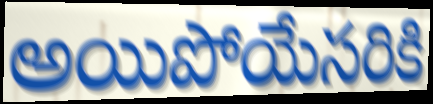
అయిపోయేసరికి